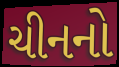
ચીનનો